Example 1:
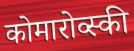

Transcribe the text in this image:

कोमारोव्स्की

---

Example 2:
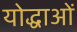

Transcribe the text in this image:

योद्धाओं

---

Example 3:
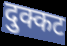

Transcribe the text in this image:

दुक्कट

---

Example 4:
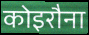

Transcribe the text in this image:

कोइरौना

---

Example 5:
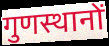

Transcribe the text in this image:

गुणस्थानों